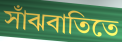
সাঁঝবাতিতে